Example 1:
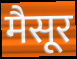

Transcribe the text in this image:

मैसूर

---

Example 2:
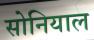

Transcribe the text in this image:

सोनियाल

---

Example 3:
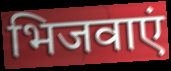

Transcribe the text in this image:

भिजवाएं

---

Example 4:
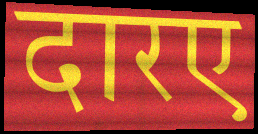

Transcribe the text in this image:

दारए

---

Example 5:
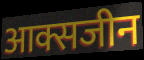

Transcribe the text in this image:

आक्सजीन